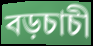
বড়চাচী